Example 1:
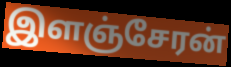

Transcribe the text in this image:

இளஞ்சேரன்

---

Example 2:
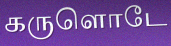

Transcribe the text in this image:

கருளொடே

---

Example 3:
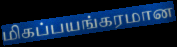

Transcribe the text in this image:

மிகப்பயங்கரமான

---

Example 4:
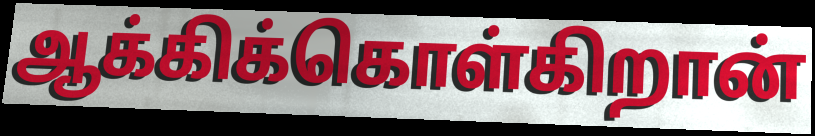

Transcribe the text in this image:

ஆக்கிக்கொள்கிறான்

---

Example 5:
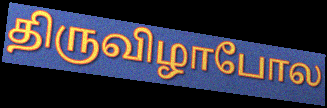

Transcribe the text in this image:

திருவிழாபோல